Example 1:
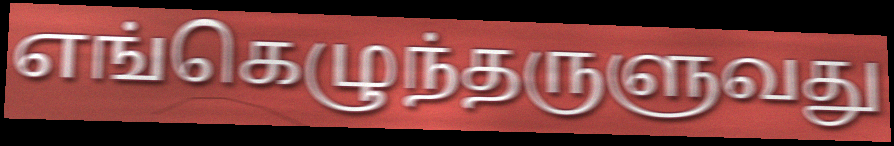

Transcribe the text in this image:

எங்கெழுந்தருளுவது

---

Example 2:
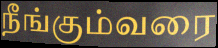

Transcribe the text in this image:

நீங்கும்வரை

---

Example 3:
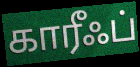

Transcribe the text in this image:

காரீஃப்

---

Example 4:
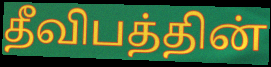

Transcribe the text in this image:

தீவிபத்தின்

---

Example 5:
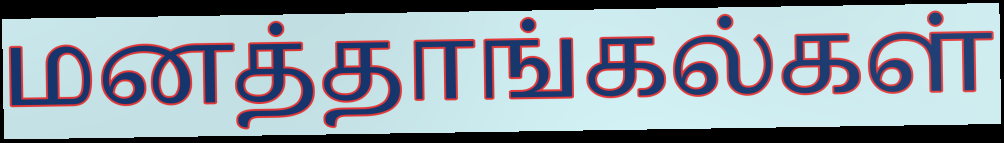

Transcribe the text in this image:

மனத்தாங்கல்கள்